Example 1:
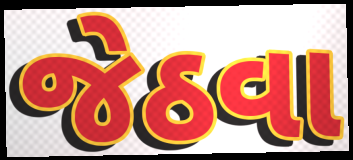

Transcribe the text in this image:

જેઠવા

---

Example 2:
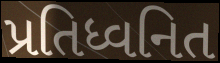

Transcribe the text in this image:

પ્રતિધ્વનિત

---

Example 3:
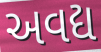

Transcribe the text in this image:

અવદ્ય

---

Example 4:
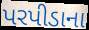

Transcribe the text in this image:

પરપીડાના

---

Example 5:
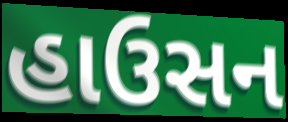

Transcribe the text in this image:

હાઉસન